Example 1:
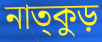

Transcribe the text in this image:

নাত্কুড়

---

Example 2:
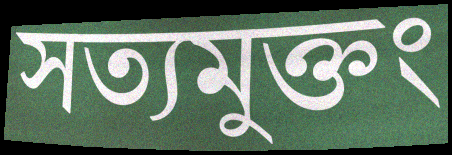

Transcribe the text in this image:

সত্যমুক্তং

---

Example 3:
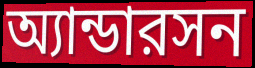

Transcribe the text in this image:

অ্যান্ডারসন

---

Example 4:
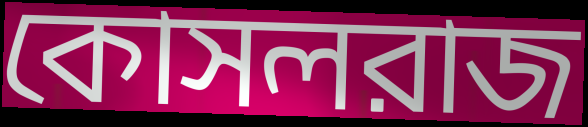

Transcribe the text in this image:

কোসলরাজ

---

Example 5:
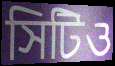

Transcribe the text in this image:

সিটিও